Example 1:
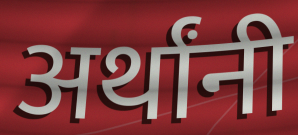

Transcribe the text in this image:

अर्थांनी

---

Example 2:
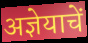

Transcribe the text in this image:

अज्ञेयाचें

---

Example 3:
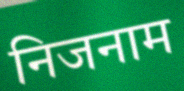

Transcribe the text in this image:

निजनाम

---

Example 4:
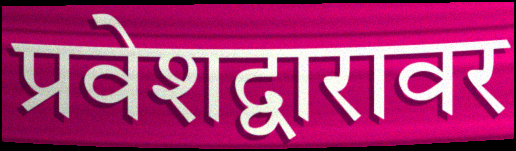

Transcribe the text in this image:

प्रवेशद्वारावर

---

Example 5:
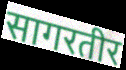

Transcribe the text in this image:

सागरतीर